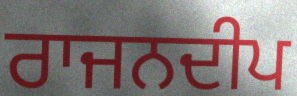
ਰਾਜਨਦੀਪ